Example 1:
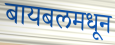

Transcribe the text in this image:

बायबलमधून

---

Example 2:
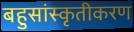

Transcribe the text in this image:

बहुसांस्कृतीकरण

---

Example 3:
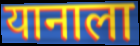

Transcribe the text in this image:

यानाला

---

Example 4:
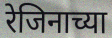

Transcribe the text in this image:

रेजिनाच्या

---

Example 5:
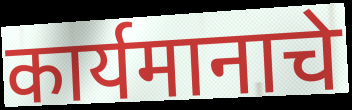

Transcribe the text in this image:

कार्यमानाचे